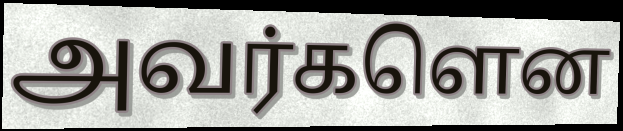
அவர்களென